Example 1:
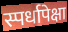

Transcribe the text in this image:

स्पर्धापेक्षा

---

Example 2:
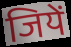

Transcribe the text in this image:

जियें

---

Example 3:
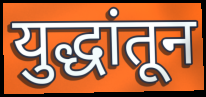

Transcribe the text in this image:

युद्धांतून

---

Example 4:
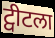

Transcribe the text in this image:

ट्वीटला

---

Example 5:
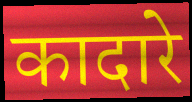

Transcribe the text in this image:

कादारे